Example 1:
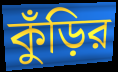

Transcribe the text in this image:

কুঁড়ির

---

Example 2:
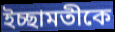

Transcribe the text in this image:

ইচ্ছামতীকে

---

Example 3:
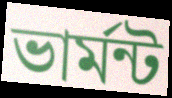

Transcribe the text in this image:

ভার্মন্ট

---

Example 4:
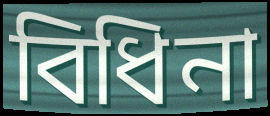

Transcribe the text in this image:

বিধিনা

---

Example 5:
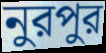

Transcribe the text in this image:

নুরপুর